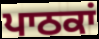
ਪਾਠਕਾਂ